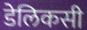
डेलिकसी